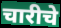
चारीचे